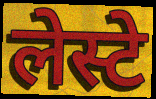
लेस्टे